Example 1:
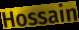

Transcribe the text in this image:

Hossain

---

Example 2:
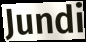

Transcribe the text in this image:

Jundi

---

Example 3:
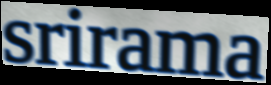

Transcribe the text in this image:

srirama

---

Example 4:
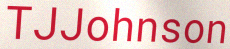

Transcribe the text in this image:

TJJohnson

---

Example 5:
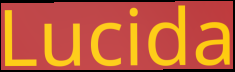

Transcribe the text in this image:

Lucida